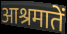
आश्रमातें